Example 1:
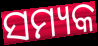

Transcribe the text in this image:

ସମ୍ୟକ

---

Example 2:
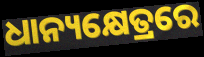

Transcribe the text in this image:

ଧାନ୍ୟକ୍ଷେତ୍ରରେ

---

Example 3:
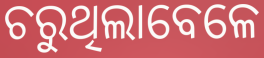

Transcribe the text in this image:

ଚରୁଥିଲାବେଳେ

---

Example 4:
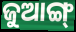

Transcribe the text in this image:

ଜୁଆଙ୍ଗ୍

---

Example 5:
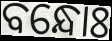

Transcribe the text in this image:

ବନ୍ଧୋଃ